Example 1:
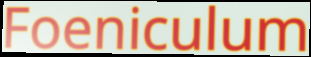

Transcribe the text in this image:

Foeniculum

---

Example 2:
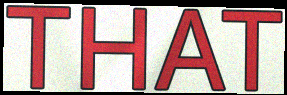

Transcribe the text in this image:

THAT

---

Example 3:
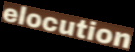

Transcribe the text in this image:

elocution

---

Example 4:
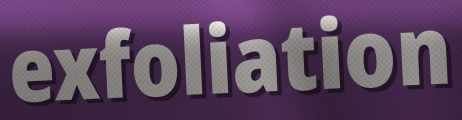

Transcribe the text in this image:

exfoliation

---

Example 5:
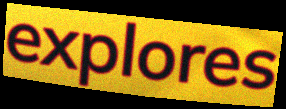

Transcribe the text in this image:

explores